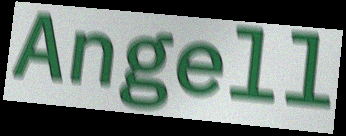
Angell